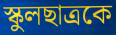
স্কুলছাত্রকে